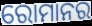
ରୋମାନର